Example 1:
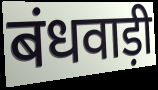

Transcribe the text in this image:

बंधवाड़ी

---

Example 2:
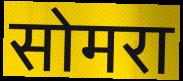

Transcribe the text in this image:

सोमरा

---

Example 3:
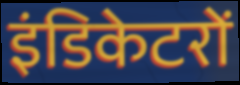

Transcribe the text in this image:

इंडिकेटरों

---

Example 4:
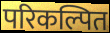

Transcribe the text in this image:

परिकल्पित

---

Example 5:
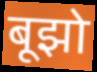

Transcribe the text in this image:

बूझो